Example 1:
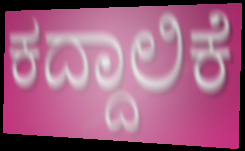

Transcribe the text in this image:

ಕದ್ದಾಲಿಕೆ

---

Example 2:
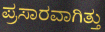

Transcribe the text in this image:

ಪ್ರಸಾರವಾಗಿತ್ತು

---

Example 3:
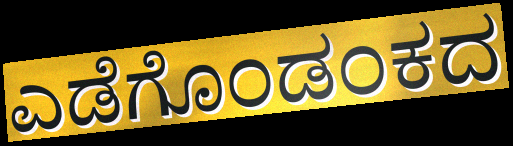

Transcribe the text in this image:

ಎಡೆಗೊಂಡಂಕದ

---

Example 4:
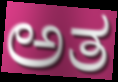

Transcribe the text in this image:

ಅತ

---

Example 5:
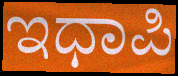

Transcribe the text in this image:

ಇಧಾಪಿ